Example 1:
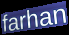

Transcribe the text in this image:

farhan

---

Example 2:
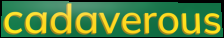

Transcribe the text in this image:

cadaverous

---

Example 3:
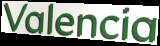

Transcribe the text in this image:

Valencia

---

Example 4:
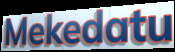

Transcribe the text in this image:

Mekedatu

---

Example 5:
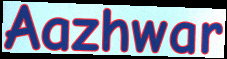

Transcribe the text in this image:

Aazhwar